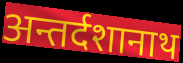
अन्तर्दशानाथ